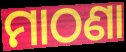
ମାଠଣା